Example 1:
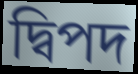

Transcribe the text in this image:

দ্বিপদ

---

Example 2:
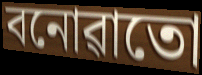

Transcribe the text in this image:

বনোৱাতো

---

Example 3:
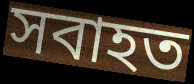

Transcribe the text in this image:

সবাহত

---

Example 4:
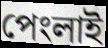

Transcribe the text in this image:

পেংলাই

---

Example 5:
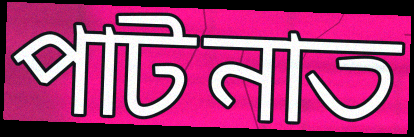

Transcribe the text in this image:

পাটনাত